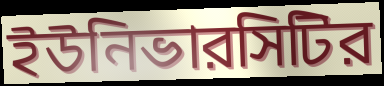
ইউনিভারসিটির